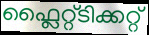
ഫ്ലൈറ്റ്ടിക്കറ്റ്